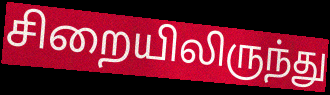
சிறையிலிருந்து